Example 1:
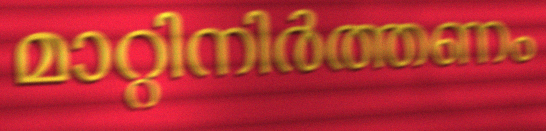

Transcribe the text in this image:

മാറ്റിനിർത്തണം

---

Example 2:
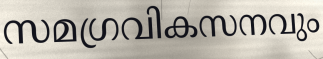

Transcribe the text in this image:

സമഗ്രവികസനവും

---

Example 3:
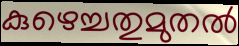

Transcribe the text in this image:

കുഴെച്ചതുമുതൽ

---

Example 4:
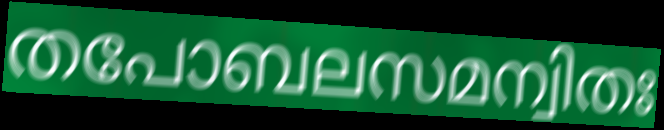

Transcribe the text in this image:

തപോബലസമന്വിതഃ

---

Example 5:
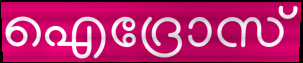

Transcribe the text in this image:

ഐദ്രോസ്